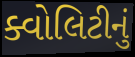
ક્વોલિટીનું